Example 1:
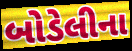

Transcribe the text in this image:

બોડેલીના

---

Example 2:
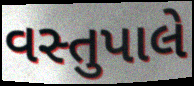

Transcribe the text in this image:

વસ્તુપાલે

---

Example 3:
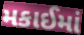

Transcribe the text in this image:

મકાઈમાં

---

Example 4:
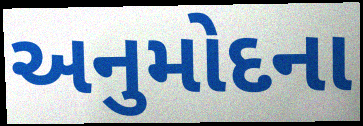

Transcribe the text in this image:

અનુમોદના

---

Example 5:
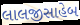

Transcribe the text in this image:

લાલજીસાહેબ